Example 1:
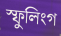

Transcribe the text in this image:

স্ফুলিংগ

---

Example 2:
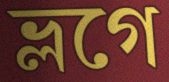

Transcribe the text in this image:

ভ্লগে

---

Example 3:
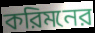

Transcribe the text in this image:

করিমনের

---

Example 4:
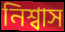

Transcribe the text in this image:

নিশ্বাস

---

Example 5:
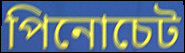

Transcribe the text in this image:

পিনোচেট